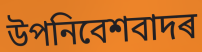
উপনিবেশবাদৰ